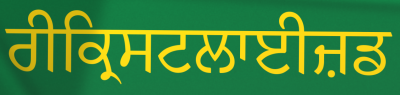
ਰੀਕ੍ਰਿਸਟਲਾਈਜ਼ਡ